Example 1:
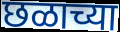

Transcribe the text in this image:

छळाच्या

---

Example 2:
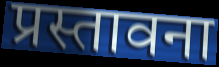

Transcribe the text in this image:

प्रस्तावना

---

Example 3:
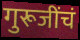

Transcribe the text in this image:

गुरूजींचं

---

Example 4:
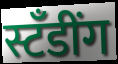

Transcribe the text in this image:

स्टँडींग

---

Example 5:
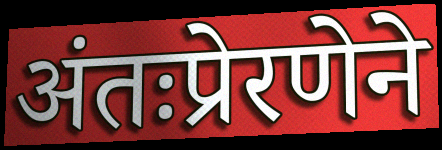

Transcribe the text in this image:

अंतःप्रेरणेने